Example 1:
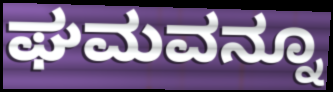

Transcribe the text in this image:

ಘಮವನ್ನೂ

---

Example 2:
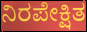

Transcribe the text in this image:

ನಿರಪೇಕ್ಷಿತ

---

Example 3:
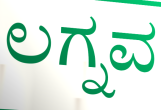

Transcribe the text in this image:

ಲಗ್ನವ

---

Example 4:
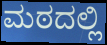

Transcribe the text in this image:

ಮಠದಲ್ಲಿ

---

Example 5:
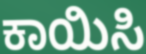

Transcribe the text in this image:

ಕಾಯಿಸಿ